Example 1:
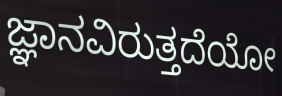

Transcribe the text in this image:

ಜ್ಞಾನವಿರುತ್ತದೆಯೋ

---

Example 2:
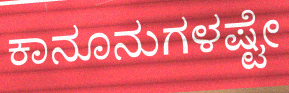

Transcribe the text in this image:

ಕಾನೂನುಗಳಷ್ಟೇ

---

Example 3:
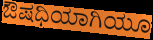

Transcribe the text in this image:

ಔಷಧಿಯಾಗಿಯೂ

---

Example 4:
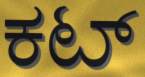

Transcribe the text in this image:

ಕಟ್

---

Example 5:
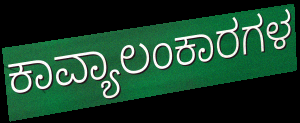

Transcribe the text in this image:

ಕಾವ್ಯಾಲಂಕಾರಗಳ